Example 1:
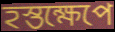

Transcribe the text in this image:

হস্তক্ষেপে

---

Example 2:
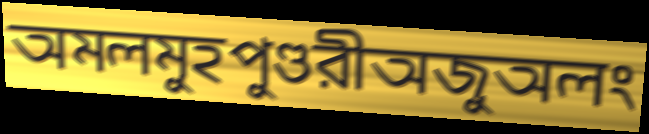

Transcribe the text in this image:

অমলমুহপুণ্ডরীঅজুঅলং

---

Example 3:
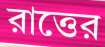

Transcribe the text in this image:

রাত্তের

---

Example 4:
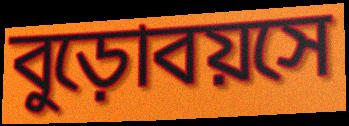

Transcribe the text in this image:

বুড়োবয়সে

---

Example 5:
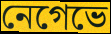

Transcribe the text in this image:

নেগেভে